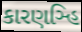
કારણઞ્હિ